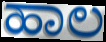
ಹಾಲ